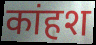
कांहश